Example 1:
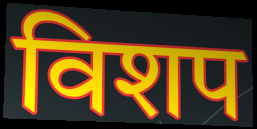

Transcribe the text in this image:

विशप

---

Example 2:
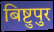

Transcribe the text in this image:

बिष्टुपुर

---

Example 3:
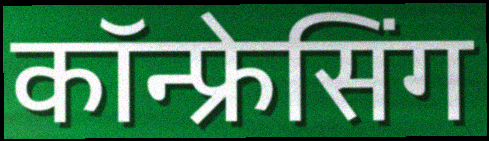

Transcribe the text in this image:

कॉन्फ्रेसिंग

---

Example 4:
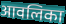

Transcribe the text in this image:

आवलिका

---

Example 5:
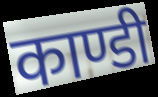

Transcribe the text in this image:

काण्डी